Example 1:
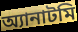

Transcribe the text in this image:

অ্যানাটমি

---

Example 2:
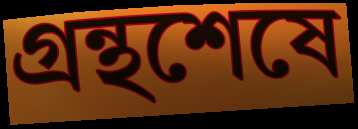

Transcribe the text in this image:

গ্রন্থশেষে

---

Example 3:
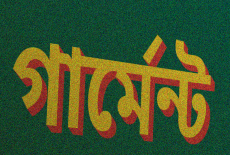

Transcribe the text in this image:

গার্মেন্ট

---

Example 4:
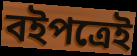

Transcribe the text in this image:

বইপত্রেই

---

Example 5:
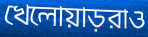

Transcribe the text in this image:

খেলোয়াড়রাও